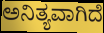
ಅನಿತ್ಯವಾಗಿದೆ